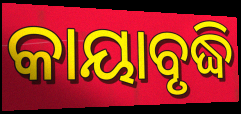
କାୟାବୃଦ୍ଧି